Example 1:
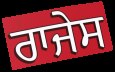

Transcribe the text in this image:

ਰਾਜੇਸ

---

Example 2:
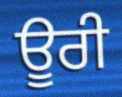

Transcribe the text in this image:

ਊਰੀ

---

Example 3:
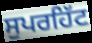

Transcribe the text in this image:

ਸੁਪਰਹਿੱਟ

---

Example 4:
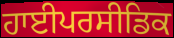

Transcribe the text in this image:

ਹਾਈਪਰਸੀਡਿਕ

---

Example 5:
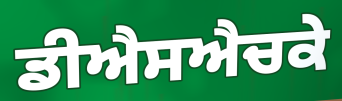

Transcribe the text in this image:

ਡੀਐਸਐਚਕੇ